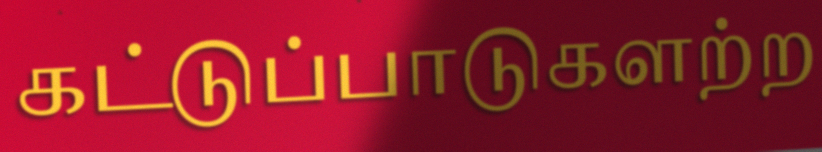
கட்டுப்பாடுகளற்ற